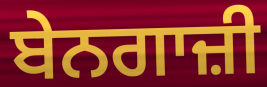
ਬੇਨਗਾਜ਼ੀ